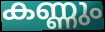
കണ്ണും